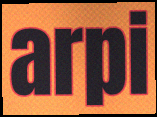
arpi